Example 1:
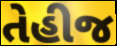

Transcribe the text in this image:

તેહીજ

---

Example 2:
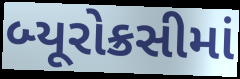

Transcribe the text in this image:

બ્યૂરોક્રસીમાં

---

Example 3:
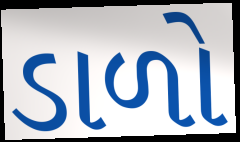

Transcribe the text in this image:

ડાળો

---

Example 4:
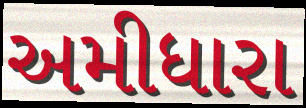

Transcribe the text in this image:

અમીધારા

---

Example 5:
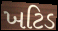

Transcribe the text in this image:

ખટિડ